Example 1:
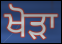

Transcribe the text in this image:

ਖੋੜਾ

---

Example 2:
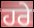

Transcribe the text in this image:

ਹਰੇ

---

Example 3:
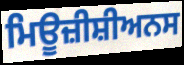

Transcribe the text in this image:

ਮਿਊਜ਼ੀਸ਼ੀਅਨਸ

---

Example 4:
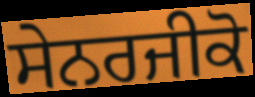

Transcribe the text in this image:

ਸੇਨਰਜੀਕੋ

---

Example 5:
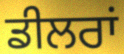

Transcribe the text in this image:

ਡੀਲਰਾਂ